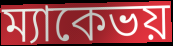
ম্যাকেভয়